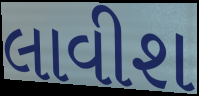
લાવીશ